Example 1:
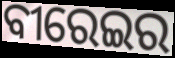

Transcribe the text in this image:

ବୀରେଇର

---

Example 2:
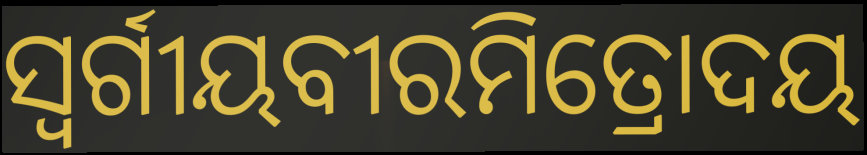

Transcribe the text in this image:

ସ୍ୱର୍ଗୀୟବୀରମିତ୍ରୋଦୟ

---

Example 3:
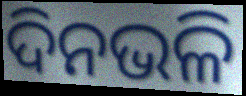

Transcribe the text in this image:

ଦିନଭଳି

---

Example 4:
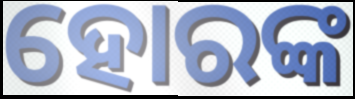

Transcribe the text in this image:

ହୋରଙ୍କ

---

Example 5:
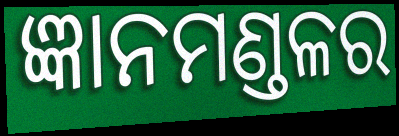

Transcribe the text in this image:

ଜ୍ଞାନମଣ୍ଡଳର